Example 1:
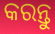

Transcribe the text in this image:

କରନ୍ତୁ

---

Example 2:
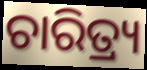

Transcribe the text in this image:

ଚାରିତ୍ର୍ୟ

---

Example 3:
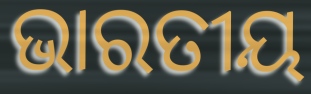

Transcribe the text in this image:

ଭାରତୀୟ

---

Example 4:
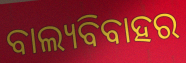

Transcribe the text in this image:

ବାଲ୍ୟବିବାହର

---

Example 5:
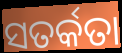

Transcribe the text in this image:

ସତର୍କତା